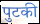
पुटकी